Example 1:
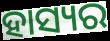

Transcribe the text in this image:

ହାସ୍ୟର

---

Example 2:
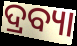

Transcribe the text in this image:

ଦ୍ରବ୍ୟା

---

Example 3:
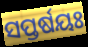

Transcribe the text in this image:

ସପ୍ତର୍ଷୟଃ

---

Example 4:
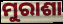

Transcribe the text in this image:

ମୁରାଶା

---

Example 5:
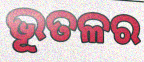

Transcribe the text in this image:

ଭୂତଳର